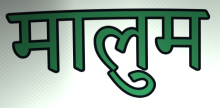
मालुम